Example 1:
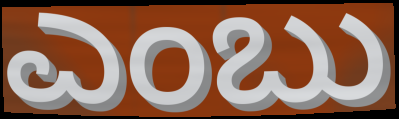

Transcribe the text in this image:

ಎಂಬು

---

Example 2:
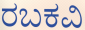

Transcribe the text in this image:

ರಬಕವಿ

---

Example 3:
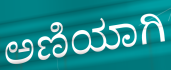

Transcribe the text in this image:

ಅಣಿಯಾಗಿ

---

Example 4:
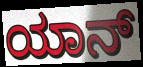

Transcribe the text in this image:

ಯಾನ್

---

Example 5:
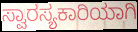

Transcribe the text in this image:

ಸ್ವಾರಸ್ಯಕಾರಿಯಾಗಿ